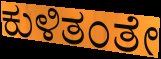
ಕುಳಿತಂತೇ